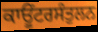
ਕਾਊਂਟਰਸੰਤੁਲਨ